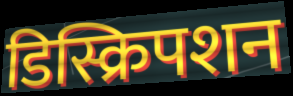
डिस्क्रिपशन